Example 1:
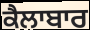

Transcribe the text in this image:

ਕੈਲਾਬਾਰ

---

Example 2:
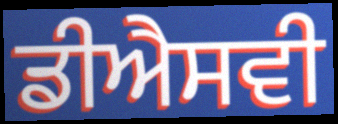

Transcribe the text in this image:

ਡੀਐਸਵੀ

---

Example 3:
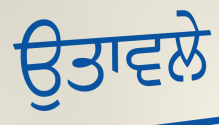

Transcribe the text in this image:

ਉਤਾਵਲੇ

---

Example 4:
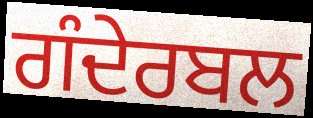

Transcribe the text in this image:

ਗੰਦੇਰਬਲ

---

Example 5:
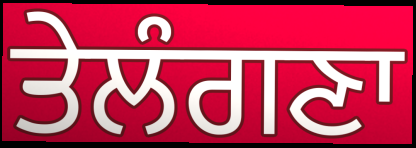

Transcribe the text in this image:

ਤੇਲੰਗਣਾ